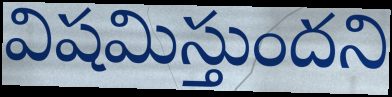
విషమిస్తుందని